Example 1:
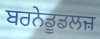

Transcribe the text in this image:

ਬਰਨੇਡੂਡਲਜ਼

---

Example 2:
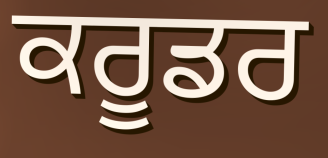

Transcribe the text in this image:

ਕਰੂਡਰ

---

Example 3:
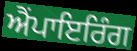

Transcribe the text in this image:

ਐਂਪਾਇਰਿੰਗ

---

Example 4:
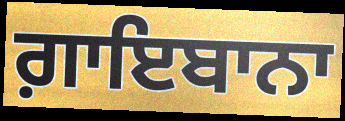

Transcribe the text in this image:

ਗ਼ਾਇਬਾਨਾ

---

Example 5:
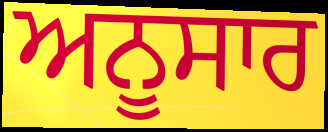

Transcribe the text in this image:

ਅਨੂਸਾਰ